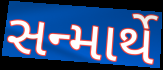
સન્માર્થે